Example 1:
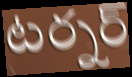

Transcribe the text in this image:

టర్నర్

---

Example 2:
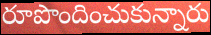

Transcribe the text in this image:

రూపొందించుకున్నారు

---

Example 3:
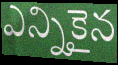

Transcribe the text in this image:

ఎన్నికైన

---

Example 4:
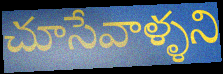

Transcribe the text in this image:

చూసేవాళ్ళని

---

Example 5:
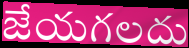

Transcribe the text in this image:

జేయగలదు